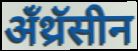
अँथ्रॅसीन